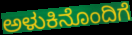
ಅಳುಕಿನೊಂದಿಗೆ